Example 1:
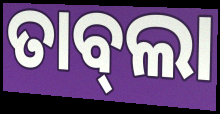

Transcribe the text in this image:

ତାବ୍‌ଲା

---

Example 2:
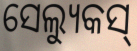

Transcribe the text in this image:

ସେଲ୍ୟୁକସ୍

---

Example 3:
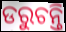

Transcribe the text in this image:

ଡରୁଚନ୍ତି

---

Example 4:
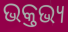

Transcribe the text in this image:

ଭକ୍ତଭ୍ୟ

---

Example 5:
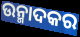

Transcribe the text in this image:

ଉନ୍ମାଦକର